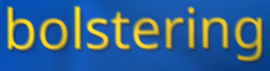
bolstering